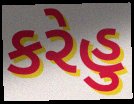
કરેહુ